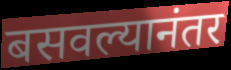
बसवल्यानंतर